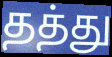
தத்து